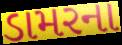
ડામરના